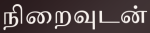
நிறைவுடன்